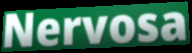
Nervosa